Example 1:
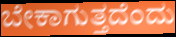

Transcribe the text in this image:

ಬೇಕಾಗುತ್ತದೆಂದು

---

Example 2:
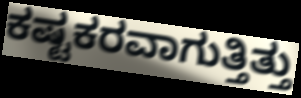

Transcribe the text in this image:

ಕಷ್ಟಕರವಾಗುತ್ತಿತ್ತು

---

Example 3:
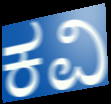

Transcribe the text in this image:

ಕವಿ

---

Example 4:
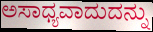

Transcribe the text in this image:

ಅಸಾಧ್ಯವಾದುದನ್ನು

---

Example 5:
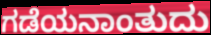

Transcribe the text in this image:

ಗಡೆಯನಾಂತುದು